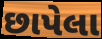
છાપેલા